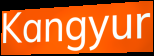
Kangyur